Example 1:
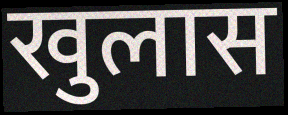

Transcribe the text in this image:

खुलास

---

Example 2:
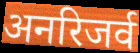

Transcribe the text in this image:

अनरिजर्व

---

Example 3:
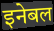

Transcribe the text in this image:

इनेबल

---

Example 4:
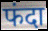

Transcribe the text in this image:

फंदा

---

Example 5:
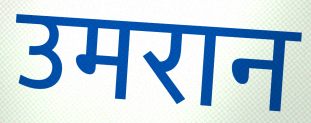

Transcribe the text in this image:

उमरान